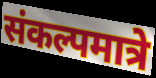
संकल्पमात्रे